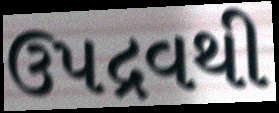
ઉપદ્રવથી